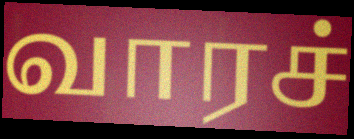
வாரச்